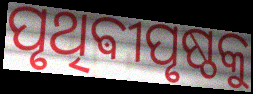
ପୃଥିଵୀପୃଷ୍ଠକୁ